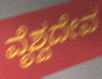
ವೈಶ್ವದೇವ